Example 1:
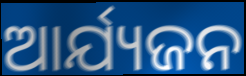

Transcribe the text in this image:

ଆର୍ଯ୍ୟଜନ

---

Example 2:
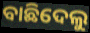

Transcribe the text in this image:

ବାଛିଦେଲୁ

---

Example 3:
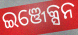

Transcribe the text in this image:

ଇଞ୍ଜେକ୍ସନ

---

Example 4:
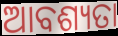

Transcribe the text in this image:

ଆବଶ୍ୟତା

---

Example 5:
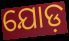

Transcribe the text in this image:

ଯୋଡ଼